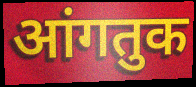
आंगतुक